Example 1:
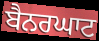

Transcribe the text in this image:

ਬੈਨਰਘਾਟ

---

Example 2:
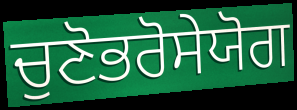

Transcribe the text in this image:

ਚੁਣੋਭਰੋਸੇਯੋਗ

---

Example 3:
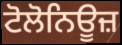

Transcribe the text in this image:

ਟੋਲੋਨਿਊਜ਼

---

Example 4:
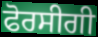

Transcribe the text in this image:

ਫੋਰਸੀਗੀ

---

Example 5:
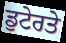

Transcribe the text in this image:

ਡੁਟੇਰਤੇ